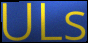
ULs